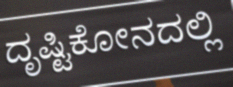
ದೃಷ್ಟಿಕೋನದಲ್ಲಿ